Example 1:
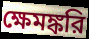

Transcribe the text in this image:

ক্ষেমঙ্করি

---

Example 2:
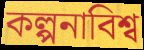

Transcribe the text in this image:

কল্পনাবিশ্ব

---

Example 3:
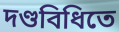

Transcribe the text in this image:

দণ্ডবিধিতে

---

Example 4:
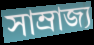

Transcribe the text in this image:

সাম্রাজ্য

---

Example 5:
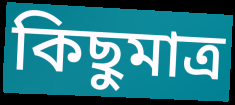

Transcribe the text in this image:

কিছুমাত্র